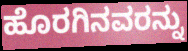
ಹೊರಗಿನವರನ್ನು